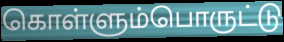
கொள்ளும்பொருட்டு